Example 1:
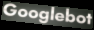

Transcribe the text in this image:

Googlebot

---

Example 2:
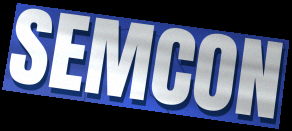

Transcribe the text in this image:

SEMCON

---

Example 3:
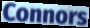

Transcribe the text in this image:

Connors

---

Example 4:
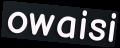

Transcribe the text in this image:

owaisi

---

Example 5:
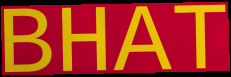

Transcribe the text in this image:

BHAT